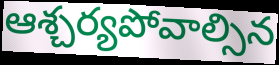
ఆశ్చర్యపోవాల్సిన